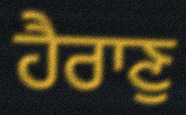
ਹੈਰਾਣੁ